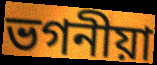
ভগনীয়া